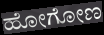
ಹೋಗೋಣ